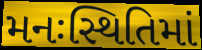
મનઃસ્થિતિમાં